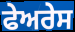
ਫੇਅਰੇਸ